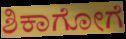
ಶಿಕಾಗೋಗೆ